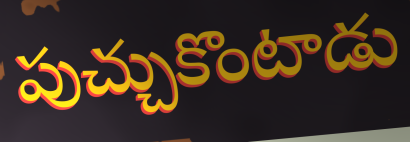
పుచ్చుకొంటాడు